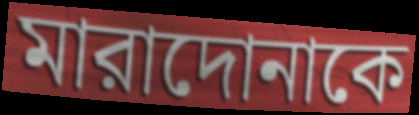
মারাদোনাকে